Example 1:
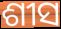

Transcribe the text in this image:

ଶୀସ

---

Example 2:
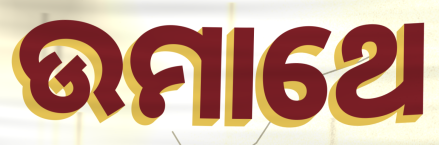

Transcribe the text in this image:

ଉମାଥେ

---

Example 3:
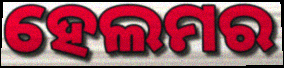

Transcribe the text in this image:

ହେଲମର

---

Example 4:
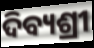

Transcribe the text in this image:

ଦିବ୍ୟଶ୍ରୀ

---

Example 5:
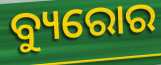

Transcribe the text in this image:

ବ୍ୟୁରୋର